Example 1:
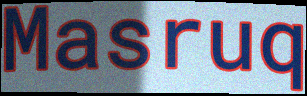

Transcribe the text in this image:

Masruq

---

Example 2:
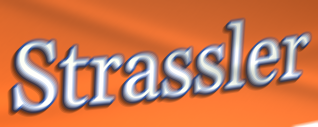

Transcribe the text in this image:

Strassler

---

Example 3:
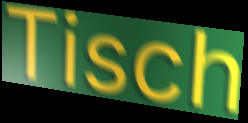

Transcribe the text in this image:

Tisch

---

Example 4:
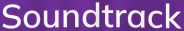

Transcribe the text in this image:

Soundtrack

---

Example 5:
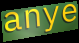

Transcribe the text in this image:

anye